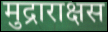
मुद्राराक्षस